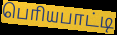
பெரியபாட்டி